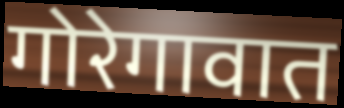
गोरेगावात